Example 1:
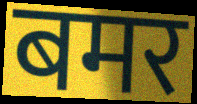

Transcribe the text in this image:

बमर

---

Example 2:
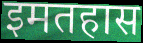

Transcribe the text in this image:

इमतहास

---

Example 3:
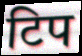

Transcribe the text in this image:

टिप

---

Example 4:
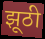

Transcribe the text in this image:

झूठी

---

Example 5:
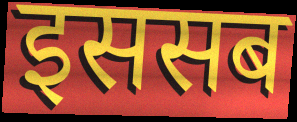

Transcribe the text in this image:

इससब